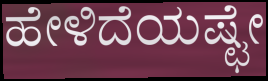
ಹೇಳಿದೆಯಷ್ಟೇ